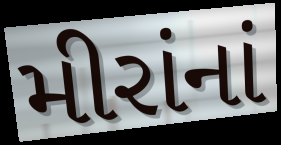
મીરાંનાં